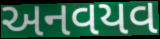
અનવયવ